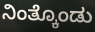
ನಿಂತ್ಕೊಂಡು